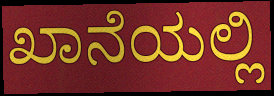
ಖಾನೆಯಲ್ಲಿ